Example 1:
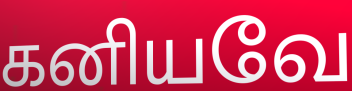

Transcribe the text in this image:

கனியவே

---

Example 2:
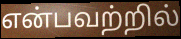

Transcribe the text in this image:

என்பவற்றில்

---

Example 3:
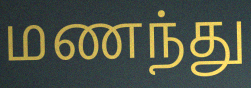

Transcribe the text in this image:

மணந்து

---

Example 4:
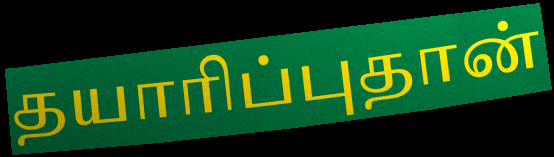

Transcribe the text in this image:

தயாரிப்புதான்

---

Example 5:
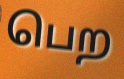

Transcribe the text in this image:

பெற